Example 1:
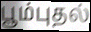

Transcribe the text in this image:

பூம்புதல்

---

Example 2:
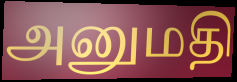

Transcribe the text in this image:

அனுமதி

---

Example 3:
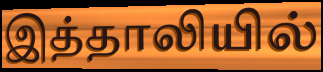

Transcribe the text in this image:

இத்தாலியில்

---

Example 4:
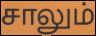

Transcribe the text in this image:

சாலும்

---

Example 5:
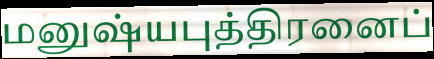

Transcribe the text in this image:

மனுஷ்யபுத்திரனைப்